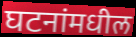
घटनांमधील